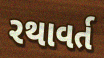
રથાવર્ત